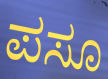
ಪಸೂ